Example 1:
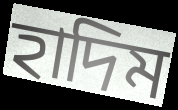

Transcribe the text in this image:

হাদিম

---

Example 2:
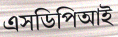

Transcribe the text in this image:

এসডিপিআই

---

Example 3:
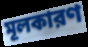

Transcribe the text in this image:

মূলকারণ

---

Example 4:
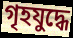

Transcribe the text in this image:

গৃহযুদ্ধে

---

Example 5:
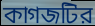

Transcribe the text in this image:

কাগজটির